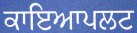
ਕਾਇਆਪਲਟ